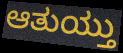
ಆತುಯ್ತು